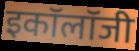
इकॉलॉजी